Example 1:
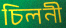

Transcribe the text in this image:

চিলনী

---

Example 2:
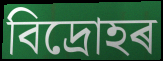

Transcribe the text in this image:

বিদ্ৰোহৰ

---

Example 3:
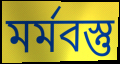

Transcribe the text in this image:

মৰ্মবস্তু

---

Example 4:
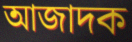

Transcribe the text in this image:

আজাদক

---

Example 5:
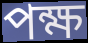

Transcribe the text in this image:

পক্ষ